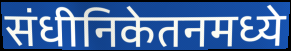
संधीनिकेतनमध्ये